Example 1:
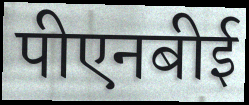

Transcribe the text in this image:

पीएनबीई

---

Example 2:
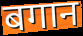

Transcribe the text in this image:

बगान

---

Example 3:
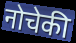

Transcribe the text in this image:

नोचेकी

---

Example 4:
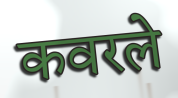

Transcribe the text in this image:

कवरले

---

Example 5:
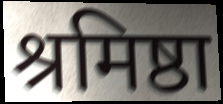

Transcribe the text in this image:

श्रमिष्ठा